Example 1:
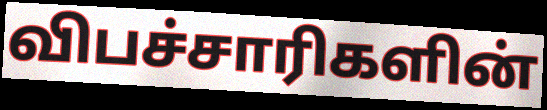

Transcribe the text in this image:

விபச்சாரிகளின்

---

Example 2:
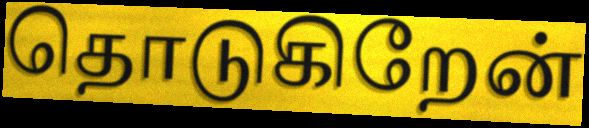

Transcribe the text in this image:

தொடுகிறேன்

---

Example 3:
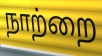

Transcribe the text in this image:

நாற்றை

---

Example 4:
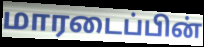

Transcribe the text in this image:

மாரடைப்பின்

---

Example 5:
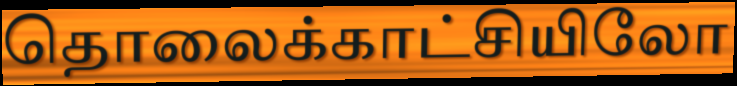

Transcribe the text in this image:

தொலைக்காட்சியிலோ